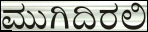
ಮುಗಿದಿರಲಿ